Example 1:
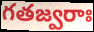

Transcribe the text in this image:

గతజ్వరాః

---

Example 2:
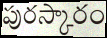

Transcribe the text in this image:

పురస్కారం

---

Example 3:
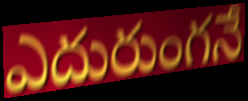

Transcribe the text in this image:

ఎదురుంగనే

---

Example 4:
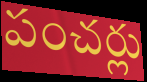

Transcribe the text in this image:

పంచర్లు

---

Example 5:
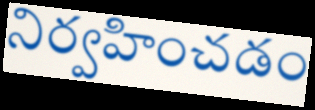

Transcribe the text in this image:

నిర్వహించడం